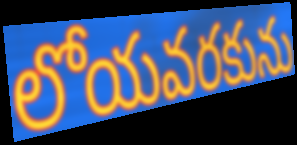
లోయవరకును